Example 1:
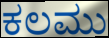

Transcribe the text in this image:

ಕಲಮು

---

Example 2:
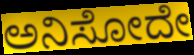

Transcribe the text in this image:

ಅನಿಸೋದೇ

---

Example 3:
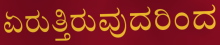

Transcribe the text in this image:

ಏರುತ್ತಿರುವುದರಿಂದ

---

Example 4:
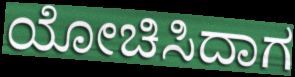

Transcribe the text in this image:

ಯೋಚಿಸಿದಾಗ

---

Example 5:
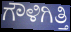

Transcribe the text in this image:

ಗೌಳಿಗಿತ್ತಿ